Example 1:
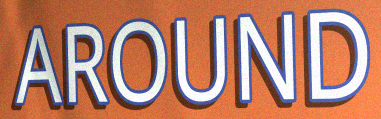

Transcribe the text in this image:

AROUND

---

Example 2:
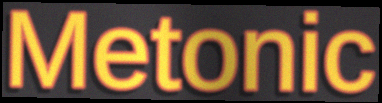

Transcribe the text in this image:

Metonic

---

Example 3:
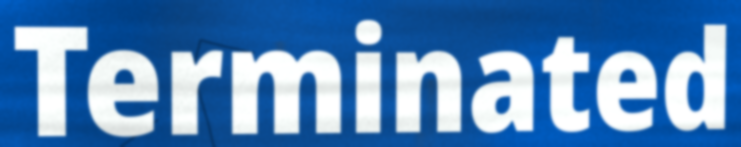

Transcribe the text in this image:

Terminated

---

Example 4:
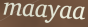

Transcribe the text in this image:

maayaa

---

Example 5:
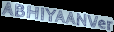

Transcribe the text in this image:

ABHIYAANVer